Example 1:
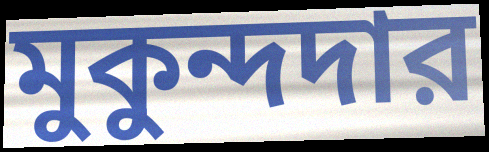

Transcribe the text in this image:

মুকুন্দদার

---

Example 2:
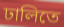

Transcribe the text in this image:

ঢালিতে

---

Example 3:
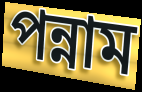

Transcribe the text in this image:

পন্নাম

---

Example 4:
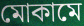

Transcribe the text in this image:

মোকামে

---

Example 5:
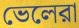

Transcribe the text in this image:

ভেলেরা